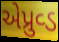
એપ્રુવ્ડ